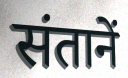
संतानें